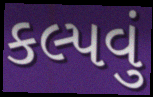
કલ્પવું